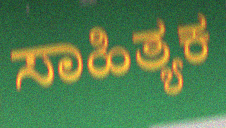
ಸಾಹಿತ್ಯಕ